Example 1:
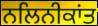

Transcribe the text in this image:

ਨਲਿਨੀਕਾਂਤ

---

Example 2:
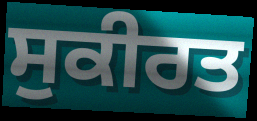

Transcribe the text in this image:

ਸੁਕੀਰਤ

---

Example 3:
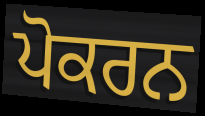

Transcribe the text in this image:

ਪੋਕਰਨ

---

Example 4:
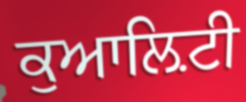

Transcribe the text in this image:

ਕੁਆਲ਼ਿਟੀ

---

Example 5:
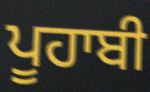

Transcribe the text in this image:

ਪੂਹਾਬੀ